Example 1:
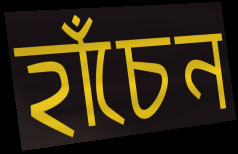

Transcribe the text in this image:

হাঁচেন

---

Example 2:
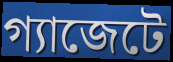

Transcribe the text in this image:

গ্যাজেটে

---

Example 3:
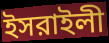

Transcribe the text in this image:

ইসরাইলী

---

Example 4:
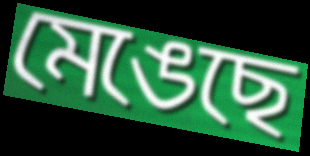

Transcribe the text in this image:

মেঙেছে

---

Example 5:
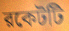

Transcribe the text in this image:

রকেটটি